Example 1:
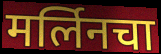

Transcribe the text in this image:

मर्लिनचा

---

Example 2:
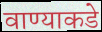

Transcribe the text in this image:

वाण्याकडे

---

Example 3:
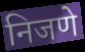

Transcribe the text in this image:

निजणे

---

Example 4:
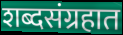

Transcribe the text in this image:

शब्दसंग्रहात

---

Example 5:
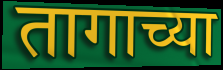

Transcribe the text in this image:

तागाच्या